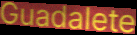
Guadalete